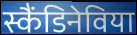
स्कैंडिनेविया